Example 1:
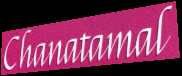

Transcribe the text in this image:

Chanatamal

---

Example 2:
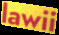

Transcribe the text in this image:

lawii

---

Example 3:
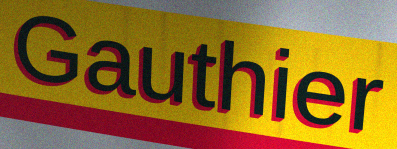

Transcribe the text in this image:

Gauthier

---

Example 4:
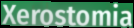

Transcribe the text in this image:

Xerostomia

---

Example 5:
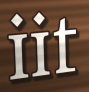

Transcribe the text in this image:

iit